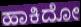
ಹಾಕಿದೋ